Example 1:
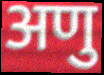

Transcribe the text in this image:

अणु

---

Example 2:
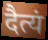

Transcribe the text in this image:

दैत्यं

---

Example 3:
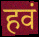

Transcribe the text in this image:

हवं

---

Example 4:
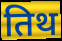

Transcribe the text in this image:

तिथ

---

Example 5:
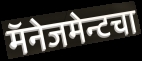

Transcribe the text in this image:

मॅनेजमेन्टचा